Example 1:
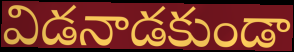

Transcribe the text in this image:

విడనాడకుండా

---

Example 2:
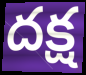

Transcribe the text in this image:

దక్ష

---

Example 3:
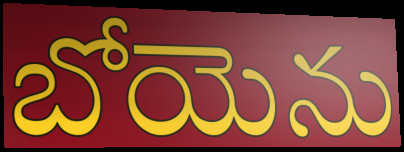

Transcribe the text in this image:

బోయెను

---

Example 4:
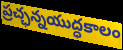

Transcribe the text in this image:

ప్రచ్ఛన్నయుద్ధకాలం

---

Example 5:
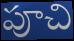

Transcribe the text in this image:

పూచి